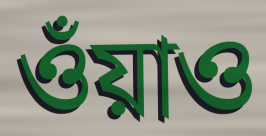
ওঁয়াও